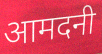
आमदनी